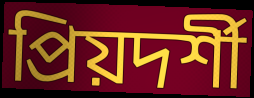
প্রিয়দর্শী